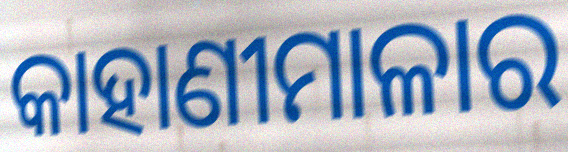
କାହାଣୀମାଳାର